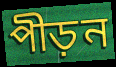
পীড়ন